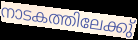
നാടകത്തിലേക്കു്